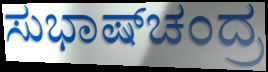
ಸುಭಾಷ್‌ಚಂದ್ರ